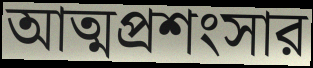
আত্মপ্রশংসার